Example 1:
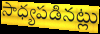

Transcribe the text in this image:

సాధ్యపడినట్లు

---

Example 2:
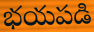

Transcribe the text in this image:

భయపడి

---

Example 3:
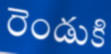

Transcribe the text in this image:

రెండుకి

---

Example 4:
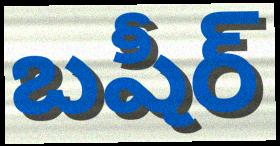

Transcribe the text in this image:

బషీర్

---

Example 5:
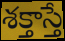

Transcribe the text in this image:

శక్తాస్తే